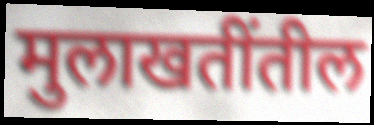
मुलाखतींतील